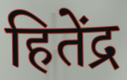
हितेंद्र